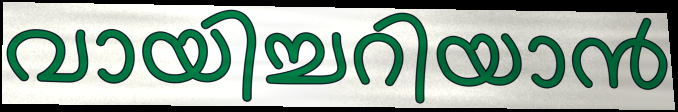
വായിച്ചറിയാൻ